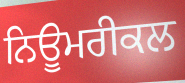
ਨਿਊਮਰੀਕਲ